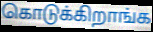
கொடுக்கிறாங்க